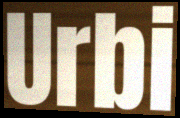
Urbi